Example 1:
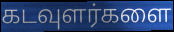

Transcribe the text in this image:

கடவுளர்களை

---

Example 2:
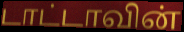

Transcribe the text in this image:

டாட்டாவின்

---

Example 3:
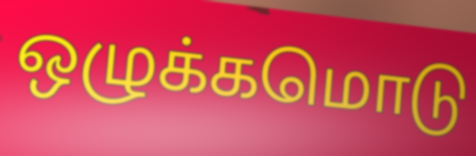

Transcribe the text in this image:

ஒழுக்கமொடு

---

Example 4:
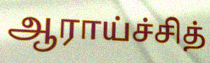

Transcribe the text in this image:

ஆராய்ச்சித்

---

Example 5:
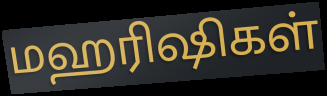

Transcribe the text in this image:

மஹரிஷிகள்